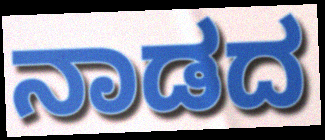
ನಾಡದ